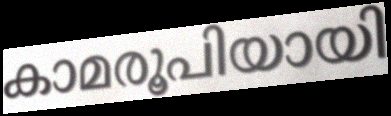
കാമരൂപിയായി